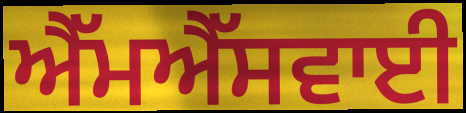
ਐੱਮਐੱਸਵਾਈ